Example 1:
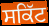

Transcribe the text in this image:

ਸਕਿੱਟ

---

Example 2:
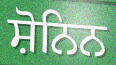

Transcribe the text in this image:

ਸ਼ੋਨਿਨ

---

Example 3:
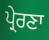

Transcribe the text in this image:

ਪ੍ਰੇਰਣਾ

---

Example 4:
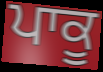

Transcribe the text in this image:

ਪਾਕੂ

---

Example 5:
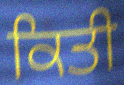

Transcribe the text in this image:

ਕਿਤੀ